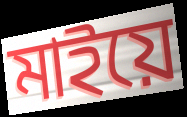
মাইয়ে